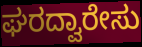
ಘರದ್ವಾರೇಸು